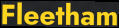
Fleetham